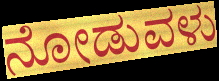
ನೋಡುವಳು